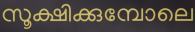
സൂക്ഷിക്കുമ്പോലെ